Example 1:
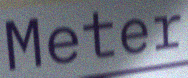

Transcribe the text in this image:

Meter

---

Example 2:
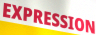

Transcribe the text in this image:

EXPRESSION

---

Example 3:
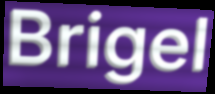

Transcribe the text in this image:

Brigel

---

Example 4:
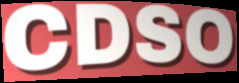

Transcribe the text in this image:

CDSO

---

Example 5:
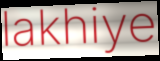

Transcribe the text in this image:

lakhiye